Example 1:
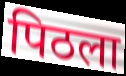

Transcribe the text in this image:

पिठला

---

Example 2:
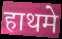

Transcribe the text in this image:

हाथमे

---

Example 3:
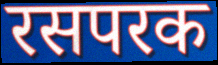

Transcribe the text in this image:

रसपरक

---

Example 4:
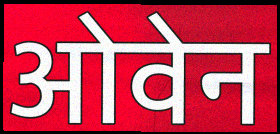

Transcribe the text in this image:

ओवेन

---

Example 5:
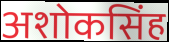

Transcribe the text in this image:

अशोकसिंह